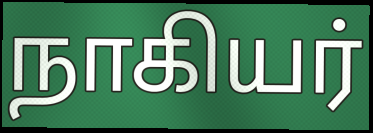
நாகியர்